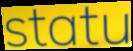
statu